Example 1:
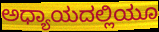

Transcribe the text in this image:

ಅಧ್ಯಾಯದಲ್ಲಿಯೂ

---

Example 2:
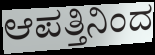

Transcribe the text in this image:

ಆಪತ್ತಿನಿಂದ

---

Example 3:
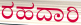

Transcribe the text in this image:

ರಹದಾರಿ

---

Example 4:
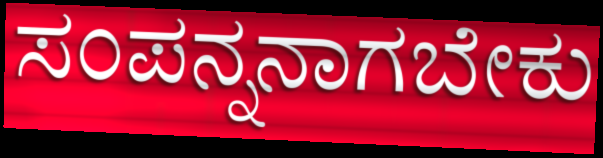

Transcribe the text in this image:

ಸಂಪನ್ನನಾಗಬೇಕು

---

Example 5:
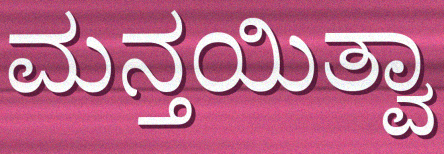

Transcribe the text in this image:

ಮನ್ತಯಿತ್ವಾ